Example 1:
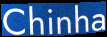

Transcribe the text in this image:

Chinha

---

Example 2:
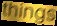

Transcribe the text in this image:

things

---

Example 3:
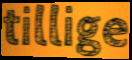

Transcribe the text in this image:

tillige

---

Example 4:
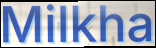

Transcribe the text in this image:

Milkha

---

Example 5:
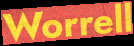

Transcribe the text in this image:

Worrell